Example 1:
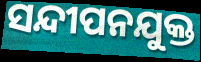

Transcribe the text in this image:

ସନ୍ଦୀପନଯୁକ୍ତ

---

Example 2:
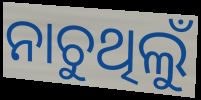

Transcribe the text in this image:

ନାଚୁଥିଲୁଁ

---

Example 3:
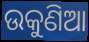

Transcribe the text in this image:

ଉକୁଣିଆ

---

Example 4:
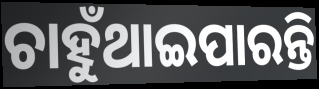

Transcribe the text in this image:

ଚାହୁଁଥାଇପାରନ୍ତି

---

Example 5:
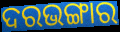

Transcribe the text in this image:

ଦରଭଙ୍ଗାର